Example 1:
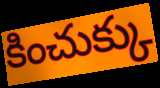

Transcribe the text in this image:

కించుక్కు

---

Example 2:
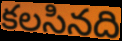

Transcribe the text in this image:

కలసినది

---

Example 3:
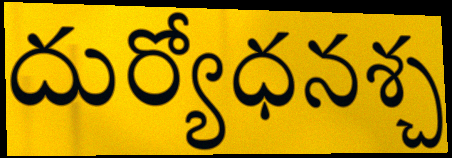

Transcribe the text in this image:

దుర్యోధనశ్చ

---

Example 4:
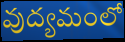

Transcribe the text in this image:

వుద్యమంలో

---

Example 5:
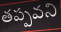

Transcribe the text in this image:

తప్పవని